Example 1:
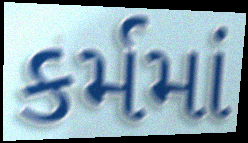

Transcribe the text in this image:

કર્મમાં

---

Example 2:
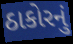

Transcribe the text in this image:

ઠાકોરનું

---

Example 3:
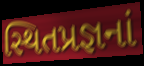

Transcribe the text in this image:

સ્થિતપ્રજ્ઞનાં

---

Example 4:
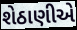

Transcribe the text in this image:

શેઠાણીએ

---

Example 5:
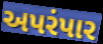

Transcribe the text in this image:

અપરંપાર